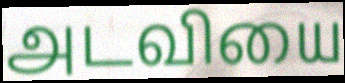
அடவியை